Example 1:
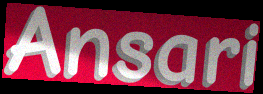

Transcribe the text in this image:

Ansari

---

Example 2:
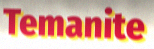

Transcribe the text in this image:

Temanite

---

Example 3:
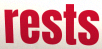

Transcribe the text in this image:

rests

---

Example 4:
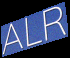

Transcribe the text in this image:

ALR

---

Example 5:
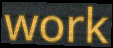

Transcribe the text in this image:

work